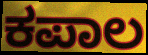
ಕಪಾಲ